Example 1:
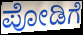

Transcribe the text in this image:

ಪೋಡಿಗೆ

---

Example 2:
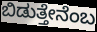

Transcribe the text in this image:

ಬಿಡುತ್ತೇನೆಂಬ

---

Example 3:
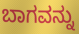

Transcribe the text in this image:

ಬಾಗವನ್ನು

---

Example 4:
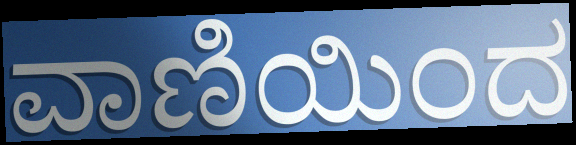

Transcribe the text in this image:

ವಾಣಿಯಿಂದ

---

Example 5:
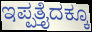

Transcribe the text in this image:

ಇಪ್ಪತ್ತೈದಕ್ಕೂ